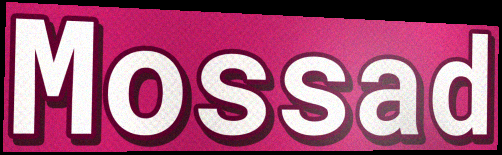
Mossad